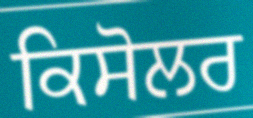
ਕਿਸੋਲਰ